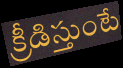
క్రీడిస్తుంటే